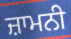
ਜ਼ਾਮਨੀ